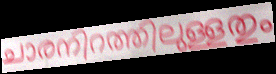
ചാരനിറത്തിലുള്ളതും